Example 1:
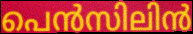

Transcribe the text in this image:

പെൻസിലിൻ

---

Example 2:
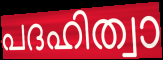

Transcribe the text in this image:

പദഹിത്വാ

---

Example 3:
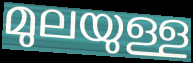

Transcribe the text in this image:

മുലയുള്ള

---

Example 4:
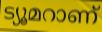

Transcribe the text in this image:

ട്യൂമറാണ്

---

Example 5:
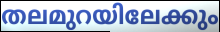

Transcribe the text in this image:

തലമുറയിലേക്കും